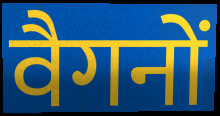
वैगनों